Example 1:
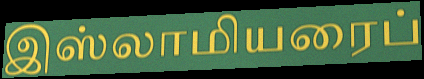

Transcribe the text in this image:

இஸ்லாமியரைப்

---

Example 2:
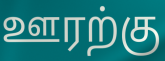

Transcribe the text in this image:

ஊரற்கு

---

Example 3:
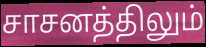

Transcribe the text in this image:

சாசனத்திலும்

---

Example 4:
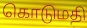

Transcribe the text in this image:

கொடுமதி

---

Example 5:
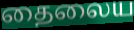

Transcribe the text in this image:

தைலைய